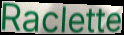
Raclette